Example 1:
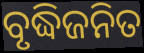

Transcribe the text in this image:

ବୃଦ୍ଧିଜନିତ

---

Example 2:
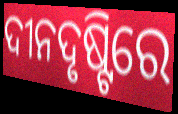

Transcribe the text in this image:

ଦୀନଦୃଷ୍ଟିରେ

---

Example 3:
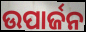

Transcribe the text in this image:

ଉପାର୍ଜନ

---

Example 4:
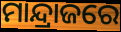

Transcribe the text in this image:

ମାନ୍ଦ୍ରାଜରେ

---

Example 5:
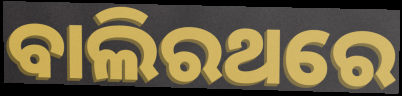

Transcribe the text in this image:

ବାଲିରଥରେ